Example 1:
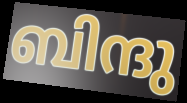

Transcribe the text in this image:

ബിന്ദു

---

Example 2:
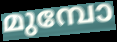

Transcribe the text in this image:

മുമ്പോ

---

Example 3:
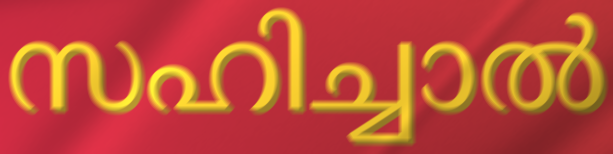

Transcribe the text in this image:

സഹിച്ചാൽ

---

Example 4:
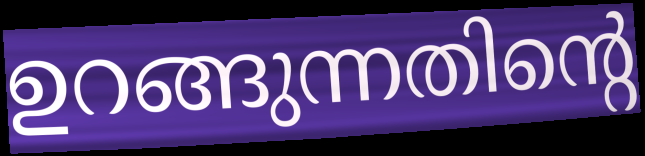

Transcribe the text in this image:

ഉറങ്ങുന്നതിന്റെ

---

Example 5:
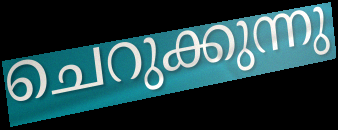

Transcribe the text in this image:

ചെറുക്കുന്നു